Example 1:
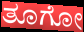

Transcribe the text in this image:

ತೂಗೋ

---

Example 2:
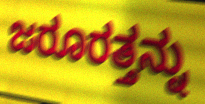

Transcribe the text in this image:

ಜರೂರತ್ತನ್ನು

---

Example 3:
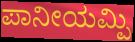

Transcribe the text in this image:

ಪಾನೀಯಮ್ಪಿ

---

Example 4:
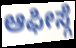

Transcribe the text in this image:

ಆಫೀಸ್ಗೆ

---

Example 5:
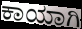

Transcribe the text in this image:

ಕಾಯಾಗಿ